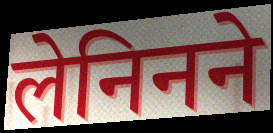
लेनिनने